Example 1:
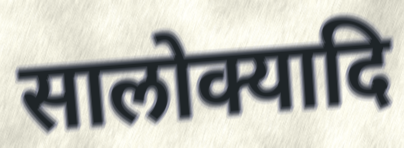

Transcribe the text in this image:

सालोक्यादि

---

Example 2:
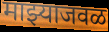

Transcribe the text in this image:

माझ्याजवळ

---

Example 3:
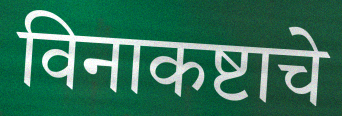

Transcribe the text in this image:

विनाकष्टाचे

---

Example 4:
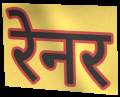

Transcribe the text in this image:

रेनर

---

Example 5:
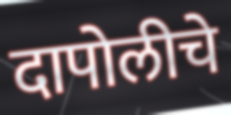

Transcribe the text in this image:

दापोलीचे